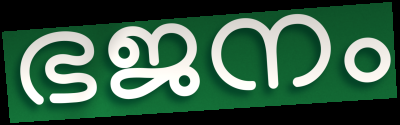
ഭജനം